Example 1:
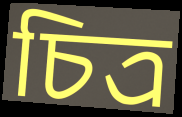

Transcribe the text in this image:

চিত্র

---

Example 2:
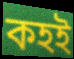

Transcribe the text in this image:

কহই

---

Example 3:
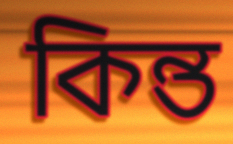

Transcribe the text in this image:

কিন্ত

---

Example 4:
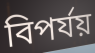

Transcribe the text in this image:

বিপর্যয়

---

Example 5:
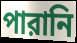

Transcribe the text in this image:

পারানি